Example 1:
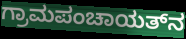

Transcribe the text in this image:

ಗ್ರಾಮಪಂಚಾಯತ್‌ನ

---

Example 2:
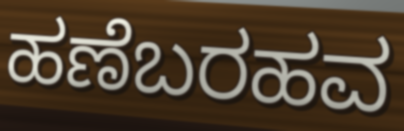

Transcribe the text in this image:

ಹಣೆಬರಹವ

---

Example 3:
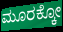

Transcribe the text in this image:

ಮೂರಕ್ಕೋ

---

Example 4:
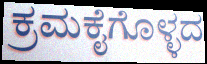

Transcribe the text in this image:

ಕ್ರಮಕೈಗೊಳ್ಳದ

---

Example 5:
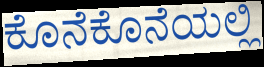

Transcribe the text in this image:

ಕೊನೆಕೊನೆಯಲ್ಲಿ